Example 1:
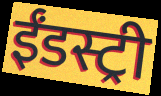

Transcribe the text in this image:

ईंडस्ट्री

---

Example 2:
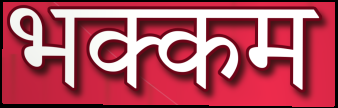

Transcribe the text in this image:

भक्कम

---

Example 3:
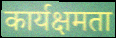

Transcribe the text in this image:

कार्यक्षमता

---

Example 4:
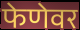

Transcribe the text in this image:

फेणेवर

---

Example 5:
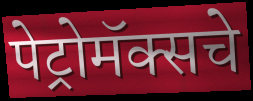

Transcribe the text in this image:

पेट्रोमॅक्सचे